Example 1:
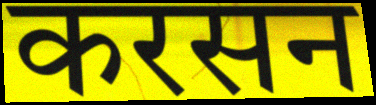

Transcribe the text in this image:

करसन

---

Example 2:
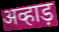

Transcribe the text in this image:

अव्हाड़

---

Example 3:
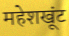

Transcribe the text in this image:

महेशखूंट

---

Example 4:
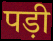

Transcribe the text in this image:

पड़ी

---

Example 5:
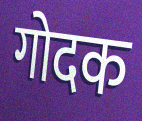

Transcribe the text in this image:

गोदक